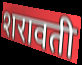
शरावती